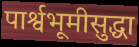
पार्श्वभूमीसुद्धा